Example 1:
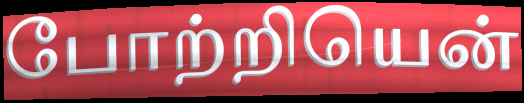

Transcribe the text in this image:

போற்றியென்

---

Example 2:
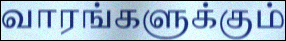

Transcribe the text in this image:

வாரங்களுக்கும்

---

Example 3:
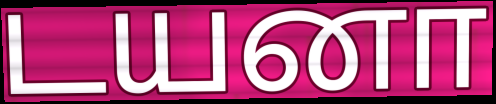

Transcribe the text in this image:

டயனா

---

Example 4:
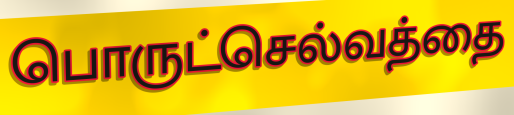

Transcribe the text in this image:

பொருட்செல்வத்தை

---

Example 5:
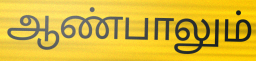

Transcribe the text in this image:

ஆண்பாலும்